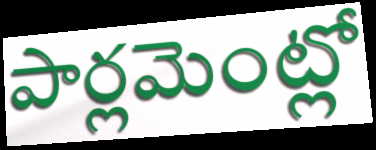
పార్లమెంట్లో